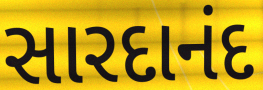
સારદાનંદ